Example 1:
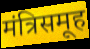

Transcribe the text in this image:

मंत्रिसमूह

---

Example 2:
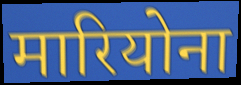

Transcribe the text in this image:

मारियोना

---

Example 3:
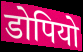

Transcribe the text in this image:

डोपियो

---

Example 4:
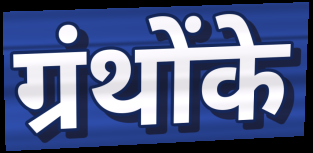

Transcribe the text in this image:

ग्रंथोंके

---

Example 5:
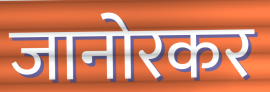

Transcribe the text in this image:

जानोरकर